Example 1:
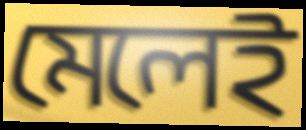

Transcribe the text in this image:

মেলেই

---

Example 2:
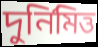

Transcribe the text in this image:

দুর্নিমিত্ত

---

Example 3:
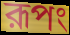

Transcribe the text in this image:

রূপং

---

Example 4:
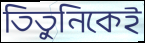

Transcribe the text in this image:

তিতুনিকেই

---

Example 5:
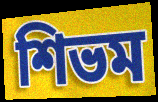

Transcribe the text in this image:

শিভম